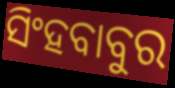
ସିଂହବାବୁର